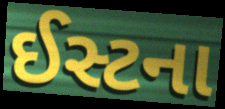
ઈસ્ટના